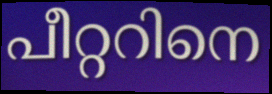
പീറ്ററിനെ